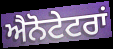
ਐਨੋਟੇਟਰਾਂ